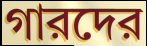
গারদের